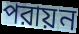
পরায়ন